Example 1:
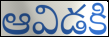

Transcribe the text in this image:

ఆవిడకి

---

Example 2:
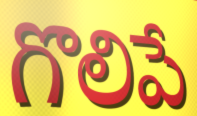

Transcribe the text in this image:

గొలిపే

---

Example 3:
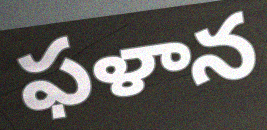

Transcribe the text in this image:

ఫళాన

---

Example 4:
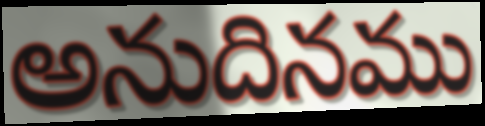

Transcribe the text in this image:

అనుదినము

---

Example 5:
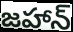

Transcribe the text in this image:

జహాన్